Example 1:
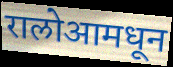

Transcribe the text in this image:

रालोआमधून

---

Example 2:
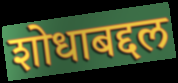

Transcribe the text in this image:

शोधाबद्दल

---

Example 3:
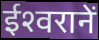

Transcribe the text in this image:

ईश्वरानें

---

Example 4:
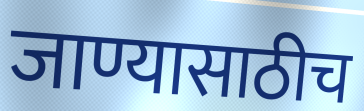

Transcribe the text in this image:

जाण्यासाठीच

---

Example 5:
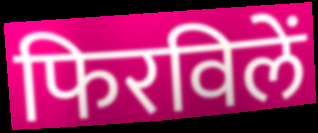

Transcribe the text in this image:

फिरविलें